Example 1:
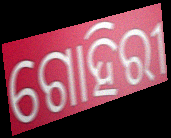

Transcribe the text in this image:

ଗୋହିରୀ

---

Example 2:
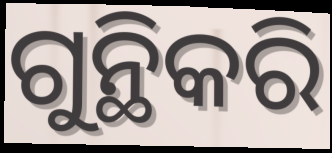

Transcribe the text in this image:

ଗୁନ୍ଥିକରି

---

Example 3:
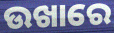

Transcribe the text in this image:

ଉଖାରେ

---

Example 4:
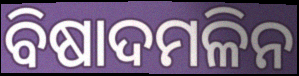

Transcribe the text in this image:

ବିଷାଦମଳିନ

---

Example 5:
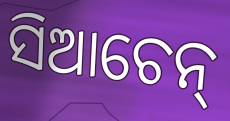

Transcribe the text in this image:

ସିଆଚେନ୍